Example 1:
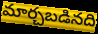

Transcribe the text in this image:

మార్చబడినది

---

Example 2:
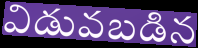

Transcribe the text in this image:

విడువబడిన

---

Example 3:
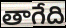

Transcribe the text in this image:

తాగేది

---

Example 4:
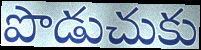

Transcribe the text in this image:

పొడుచుకు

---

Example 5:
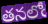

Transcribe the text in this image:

తనలోఁ